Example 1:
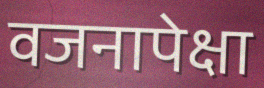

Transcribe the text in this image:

वजनापेक्षा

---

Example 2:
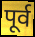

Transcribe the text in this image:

पूर्व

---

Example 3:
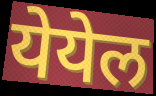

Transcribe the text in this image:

येयेल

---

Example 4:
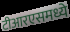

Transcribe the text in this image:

टीआरएसमध्ये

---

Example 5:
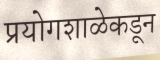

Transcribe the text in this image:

प्रयोगशाळेकडून